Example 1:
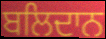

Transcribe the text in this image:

ਬਲਿਦਾਨ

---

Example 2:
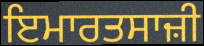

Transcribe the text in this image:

ਇਮਾਰਤਸਾਜ਼ੀ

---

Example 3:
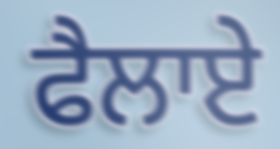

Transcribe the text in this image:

ਫੈਲਾਏ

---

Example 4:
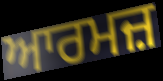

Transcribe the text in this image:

ਆਰਮਜ਼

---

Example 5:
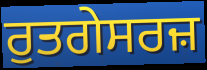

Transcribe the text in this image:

ਰੁਤਗੇਸਰਜ਼